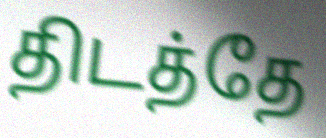
திடத்தே